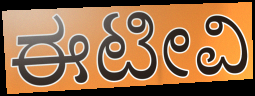
ಈಟೀವಿ